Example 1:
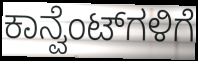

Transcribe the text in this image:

ಕಾನ್ವೆಂಟ್‌ಗಳಿಗೆ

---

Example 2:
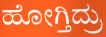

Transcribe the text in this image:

ಹೋಗ್ತಿದ್ರು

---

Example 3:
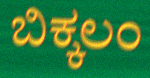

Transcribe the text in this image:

ಬಿಕ್ಕಲಂ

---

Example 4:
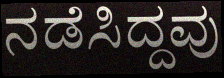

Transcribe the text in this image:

ನಡೆಸಿದ್ದವು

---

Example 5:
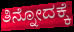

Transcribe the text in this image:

ತಿನ್ನೋದಕ್ಕೆ